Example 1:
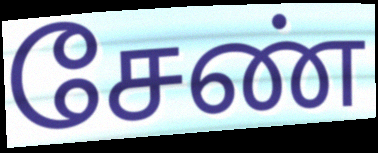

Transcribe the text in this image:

சேண்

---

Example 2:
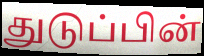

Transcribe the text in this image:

துடுப்பின்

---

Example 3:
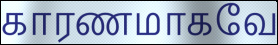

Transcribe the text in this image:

காரணமாகவே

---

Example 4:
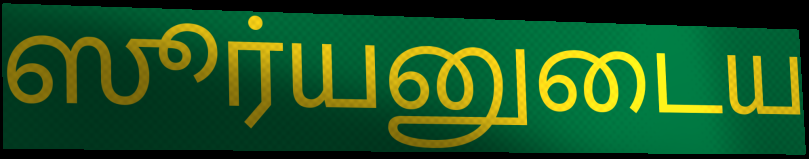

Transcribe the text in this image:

ஸூர்யனுடைய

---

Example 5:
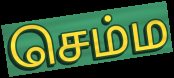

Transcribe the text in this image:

செம்ம